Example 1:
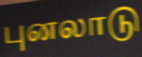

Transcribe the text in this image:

புனலாடு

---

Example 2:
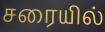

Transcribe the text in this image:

சரையில்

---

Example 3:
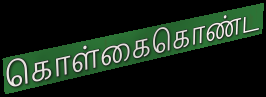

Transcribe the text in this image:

கொள்கைகொண்ட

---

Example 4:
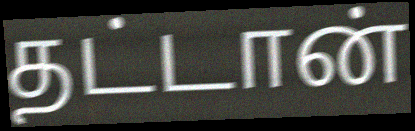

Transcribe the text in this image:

தட்டான்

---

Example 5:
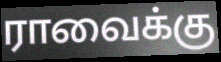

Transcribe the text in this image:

ராவைக்கு